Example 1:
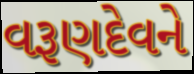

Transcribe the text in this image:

વરૂણદેવને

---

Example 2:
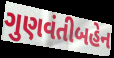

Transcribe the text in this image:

ગુણવંતીબહેન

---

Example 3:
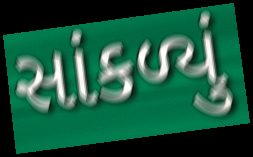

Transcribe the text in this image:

સાંકળ્યું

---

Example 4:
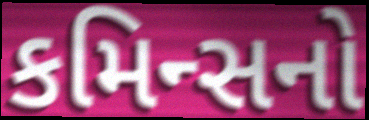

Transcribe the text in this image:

કમિન્સનો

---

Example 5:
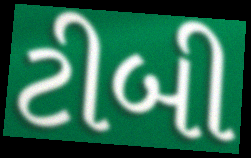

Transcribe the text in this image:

ટીબી